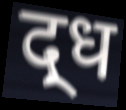
द्ध